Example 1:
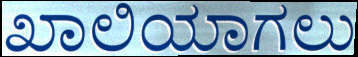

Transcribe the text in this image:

ಖಾಲಿಯಾಗಲು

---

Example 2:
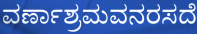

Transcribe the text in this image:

ವರ್ಣಾಶ್ರಮವನರಸದೆ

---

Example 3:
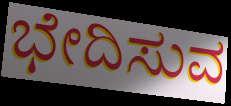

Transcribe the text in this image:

ಭೇದಿಸುವ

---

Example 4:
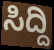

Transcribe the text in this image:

ಸಿದ್ದಿ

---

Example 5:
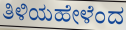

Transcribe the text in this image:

ತಿಳಿಯಹೇಳೆಂದ